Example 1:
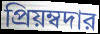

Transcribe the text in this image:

প্রিয়ম্বদার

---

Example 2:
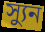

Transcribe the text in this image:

স্যুন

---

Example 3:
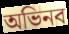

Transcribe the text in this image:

অভিনব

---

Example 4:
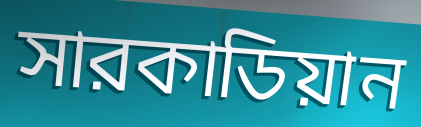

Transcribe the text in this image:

সারকাডিয়ান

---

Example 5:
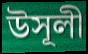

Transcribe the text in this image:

উসূলী